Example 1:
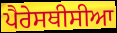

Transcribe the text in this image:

ਪੈਰੇਸਥੀਸੀਆ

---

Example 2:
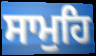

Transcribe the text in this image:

ਸਾਮੁਹਿ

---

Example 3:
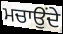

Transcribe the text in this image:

ਮਚਾਉਂਦੇ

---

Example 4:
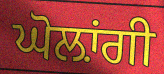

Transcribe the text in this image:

ਘੋਲ਼ਾਂਗੀ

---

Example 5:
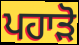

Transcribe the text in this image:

ਪਹਾੜੋ